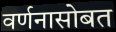
वर्णनासोबत